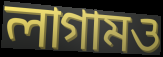
লাগামও